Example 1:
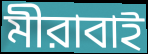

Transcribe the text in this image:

মীরাবাই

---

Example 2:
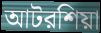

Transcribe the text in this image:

আটরশিয়া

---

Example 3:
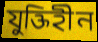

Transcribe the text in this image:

যুক্তিহীন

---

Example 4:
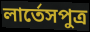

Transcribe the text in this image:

লার্তেসপুত্র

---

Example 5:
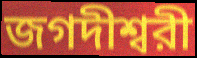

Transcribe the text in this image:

জগদীশ্বরী